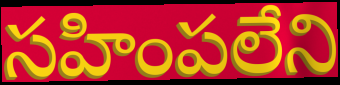
సహింపలేని